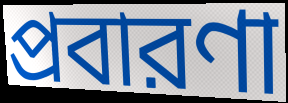
প্রবারণা